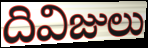
దివిజులు